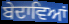
ਬੇਦਾਵਿਆਂ